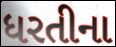
ધરતીના